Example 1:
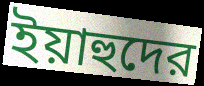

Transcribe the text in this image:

ইয়াহুদের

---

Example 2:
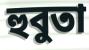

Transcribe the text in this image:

হুবুতা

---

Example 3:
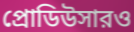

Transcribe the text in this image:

প্রোডিউসারও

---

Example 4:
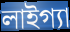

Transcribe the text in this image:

লাইগ্যা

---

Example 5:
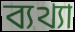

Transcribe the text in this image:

ব্যথ্যা